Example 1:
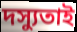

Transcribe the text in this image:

দস্যুতাই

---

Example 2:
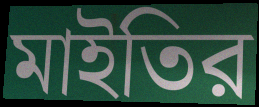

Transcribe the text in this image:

মাইতির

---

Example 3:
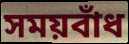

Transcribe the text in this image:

সময়বাঁধ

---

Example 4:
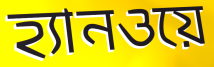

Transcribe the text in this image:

হ্যানওয়ে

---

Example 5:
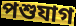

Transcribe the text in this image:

পশুযাগ